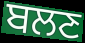
ਬਲਣ